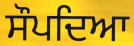
ਸੌਪਦਿਆ